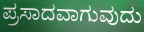
ಪ್ರಸಾದವಾಗುವುದು